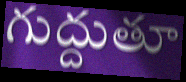
గుద్దుతూ